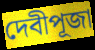
দেবীপূজা